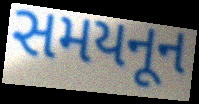
સમયનૂન